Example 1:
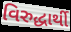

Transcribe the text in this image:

વિરુદ્ધાર્થી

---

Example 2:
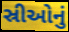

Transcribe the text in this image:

સ્રીઓનું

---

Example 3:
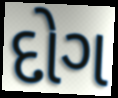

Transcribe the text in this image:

દોગ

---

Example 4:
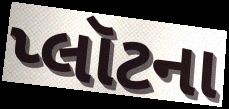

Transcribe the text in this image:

પ્લૉટના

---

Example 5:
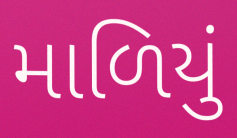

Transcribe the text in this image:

માળિયું